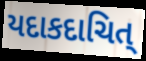
યદાકદાચિત્